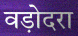
वड़ोदरा